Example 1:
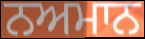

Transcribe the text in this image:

ਨਅਮਾਨ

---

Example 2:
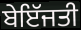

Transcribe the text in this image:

ਬੇਇੱਜਤੀ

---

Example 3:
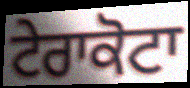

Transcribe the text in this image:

ਟੇਰਾਕੋਟਾ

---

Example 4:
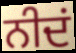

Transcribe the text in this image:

ਨੀਦਂ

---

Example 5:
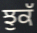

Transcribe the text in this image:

ਝੁਕੱ